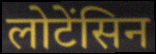
लोटेंसिन